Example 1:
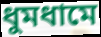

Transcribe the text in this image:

ধুমধামে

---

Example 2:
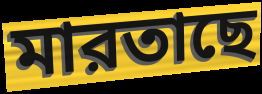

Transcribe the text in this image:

মারতাছে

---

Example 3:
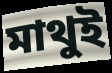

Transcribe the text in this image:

মাথুই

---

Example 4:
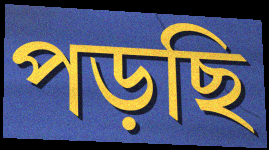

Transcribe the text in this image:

পড়ছি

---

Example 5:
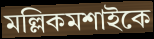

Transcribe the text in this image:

মল্লিকমশাইকে